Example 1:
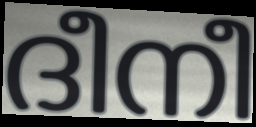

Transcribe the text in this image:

ദീനീ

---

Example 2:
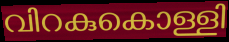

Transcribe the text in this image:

വിറകുകൊള്ളി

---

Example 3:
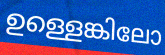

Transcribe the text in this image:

ഉള്ളെങ്കിലോ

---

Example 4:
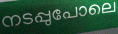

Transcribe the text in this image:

നടപ്പുപോലെ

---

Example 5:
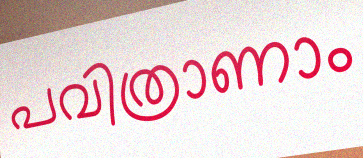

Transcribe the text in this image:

പവിത്രാണാം